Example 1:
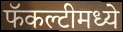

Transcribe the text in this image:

फॅकल्टीमध्ये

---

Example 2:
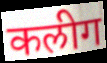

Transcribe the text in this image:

कलीग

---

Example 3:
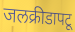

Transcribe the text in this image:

जलक्रीडापटू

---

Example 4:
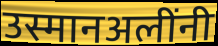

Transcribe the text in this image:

उस्मानअलींनी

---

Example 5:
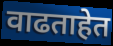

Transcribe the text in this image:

वाढताहेत